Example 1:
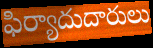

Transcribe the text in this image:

ఫిర్యాదుదారులు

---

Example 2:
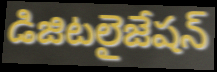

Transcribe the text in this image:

డిజిటలైజేషన్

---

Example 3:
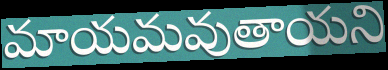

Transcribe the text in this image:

మాయమవుతాయని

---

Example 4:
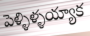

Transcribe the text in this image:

పెళ్ళిళ్ళయ్యాక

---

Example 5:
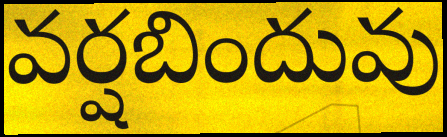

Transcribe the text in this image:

వర్షబిందువు